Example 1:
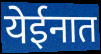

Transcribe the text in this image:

येईनात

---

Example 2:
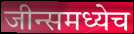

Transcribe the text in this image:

जीन्समध्येच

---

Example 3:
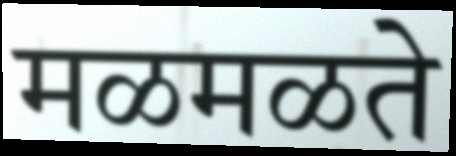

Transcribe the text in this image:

मळमळते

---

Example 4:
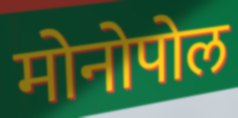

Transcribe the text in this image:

मोनोपोल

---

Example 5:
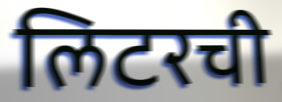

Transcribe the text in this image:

लिटरची